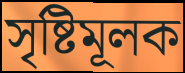
সৃষ্টিমূলক